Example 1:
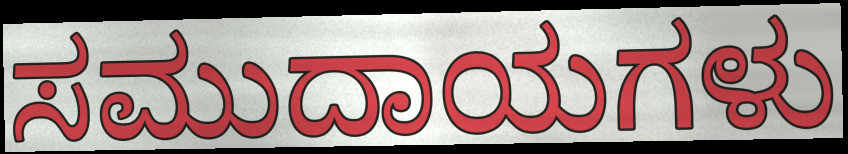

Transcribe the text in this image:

ಸಮುದಾಯಗಳು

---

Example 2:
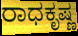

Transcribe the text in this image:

ರಾಧಕೃಷ್ಣ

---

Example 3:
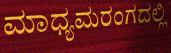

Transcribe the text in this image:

ಮಾಧ್ಯಮರಂಗದಲ್ಲಿ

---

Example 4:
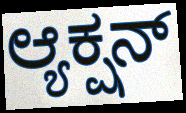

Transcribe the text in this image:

ಆ್ಯಕ್ಷನ್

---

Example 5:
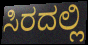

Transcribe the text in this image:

ಸಿರದಲ್ಲಿ